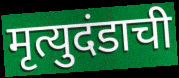
मृत्युदंडाची